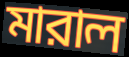
মারাল